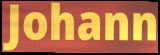
Johann